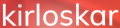
kirloskar